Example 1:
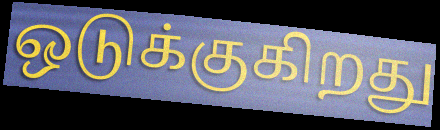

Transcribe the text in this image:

ஒடுக்குகிறது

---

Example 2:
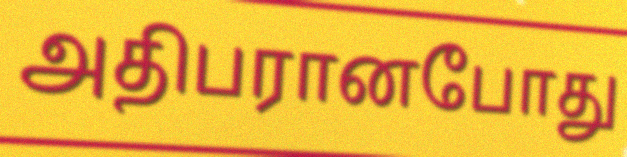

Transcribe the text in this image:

அதிபரானபோது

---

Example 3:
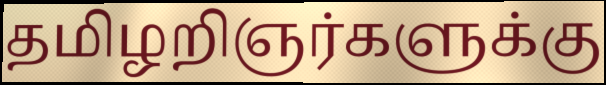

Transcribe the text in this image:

தமிழறிஞர்களுக்கு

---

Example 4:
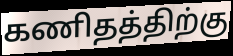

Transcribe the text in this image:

கணிதத்திற்கு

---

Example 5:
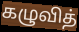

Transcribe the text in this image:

கழுவித்